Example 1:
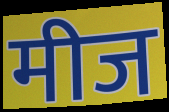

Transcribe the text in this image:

मीज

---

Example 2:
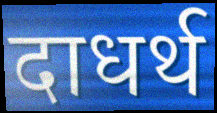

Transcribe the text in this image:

दाधर्थ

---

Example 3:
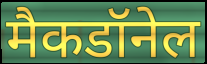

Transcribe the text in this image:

मैकडॉनेल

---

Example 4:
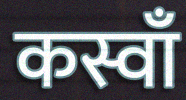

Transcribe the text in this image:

कस्वाँ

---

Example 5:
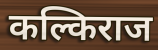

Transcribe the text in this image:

कल्किराज